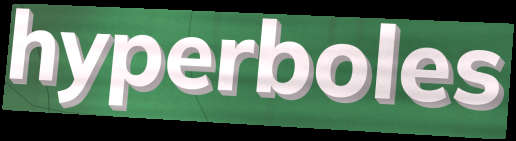
hyperboles